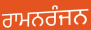
ਰਾਮਨਰੰਜਨ